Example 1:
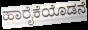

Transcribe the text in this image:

ಹಾರೈಕೆಯೊಡನೆ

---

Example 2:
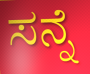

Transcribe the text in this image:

ಸನ್ನೆ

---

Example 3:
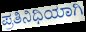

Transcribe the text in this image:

ಪ್ರತಿನಿಧಿಯಾಗಿ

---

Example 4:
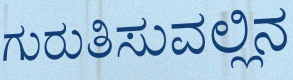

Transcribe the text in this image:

ಗುರುತಿಸುವಲ್ಲಿನ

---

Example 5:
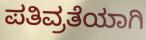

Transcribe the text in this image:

ಪತಿವ್ರತೆಯಾಗಿ